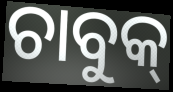
ଚାବୁକ୍